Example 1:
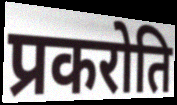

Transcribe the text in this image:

प्रकरोति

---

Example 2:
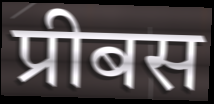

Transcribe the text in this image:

प्रीबस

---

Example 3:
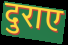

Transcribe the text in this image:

दुराए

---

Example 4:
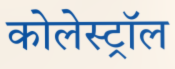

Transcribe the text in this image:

कोलेस्‍ट्रॉल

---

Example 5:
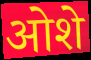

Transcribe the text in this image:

ओशे